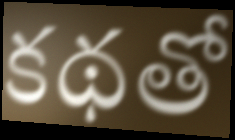
కథతో